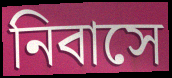
নিবাসে